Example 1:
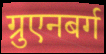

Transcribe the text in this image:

ग्रुएनबर्ग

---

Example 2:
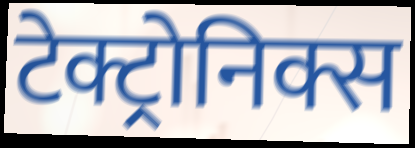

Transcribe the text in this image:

टेक्ट्रोनिक्स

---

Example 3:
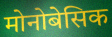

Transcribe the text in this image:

मोनोबेसिक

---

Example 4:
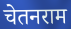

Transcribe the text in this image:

चेतनराम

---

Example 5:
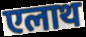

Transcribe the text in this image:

एलाथ